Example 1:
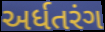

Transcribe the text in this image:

અર્ધતરંગ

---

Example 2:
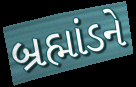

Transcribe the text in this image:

બ્રહ્માંડને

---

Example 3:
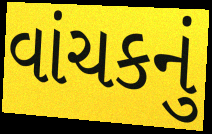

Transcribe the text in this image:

વાંચકનું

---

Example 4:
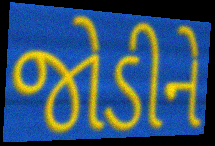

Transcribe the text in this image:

જોડીને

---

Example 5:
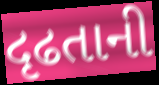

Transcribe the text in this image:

દૃઢતાની